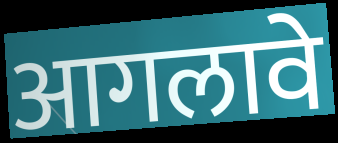
आगलावे